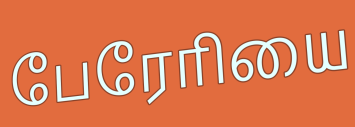
பேரேரியை